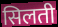
सिलती